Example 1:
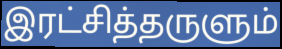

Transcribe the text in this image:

இரட்சித்தருளும்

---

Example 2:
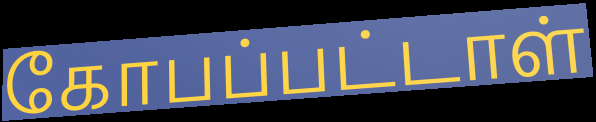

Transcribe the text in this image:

கோபப்பட்டாள்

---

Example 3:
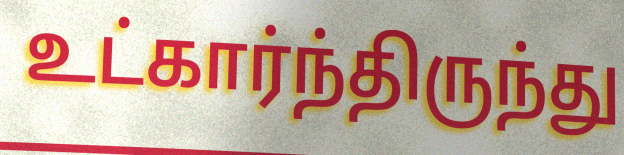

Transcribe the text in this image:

உட்கார்ந்திருந்து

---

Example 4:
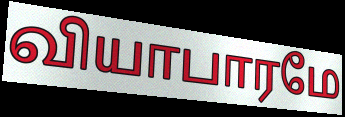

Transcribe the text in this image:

வியாபாரமே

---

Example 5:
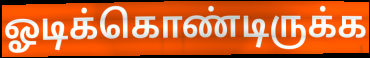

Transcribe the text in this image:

ஓடிக்கொண்டிருக்க